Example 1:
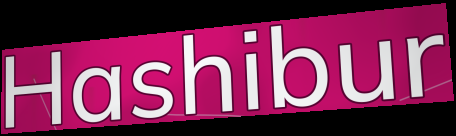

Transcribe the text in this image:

Hashibur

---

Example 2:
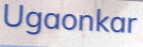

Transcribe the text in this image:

Ugaonkar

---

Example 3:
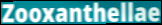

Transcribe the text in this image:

Zooxanthellae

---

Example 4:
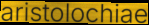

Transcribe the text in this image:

aristolochiae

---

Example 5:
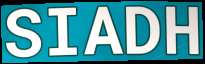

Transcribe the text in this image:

SIADH